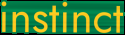
instinct